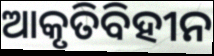
ଆକୃତିବିହୀନ